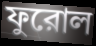
ফুরোল